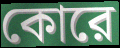
কোরে